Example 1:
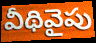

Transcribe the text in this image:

వీథివైపు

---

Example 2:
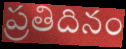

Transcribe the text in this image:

ప్రతిదినం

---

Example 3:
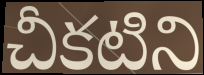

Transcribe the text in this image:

చీకటిని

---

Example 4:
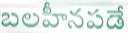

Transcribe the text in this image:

బలహీనపడే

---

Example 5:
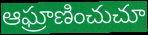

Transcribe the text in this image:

ఆఘ్రాణించుచూ